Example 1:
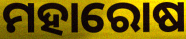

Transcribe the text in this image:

ମହାରୋଷ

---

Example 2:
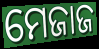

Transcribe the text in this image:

ମେଜାଜ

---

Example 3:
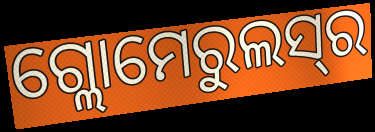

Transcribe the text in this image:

ଗ୍ଲୋମେରୁଲସ୍‌ର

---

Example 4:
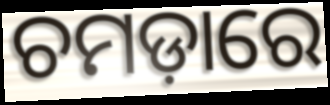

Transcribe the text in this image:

ଚମଡ଼ାରେ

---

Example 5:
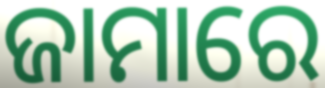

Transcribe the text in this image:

ଜାମାରେ